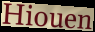
Hiouen